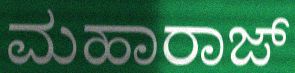
ಮಹಾರಾಜ್